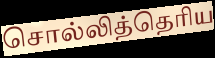
சொல்லித்தெரிய